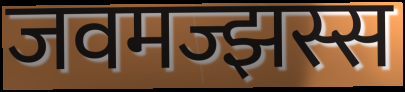
जवमज्झस्स